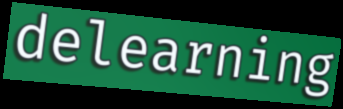
delearning